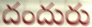
దందురు